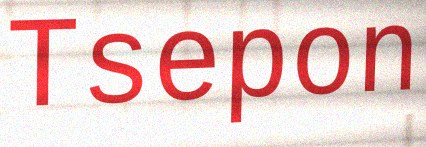
Tsepon